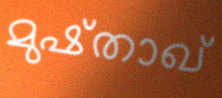
മുഷ്താഖ്